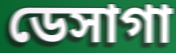
ডেসাগা